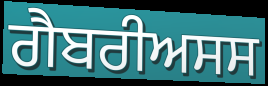
ਗੈਬਰੀਅਸਸ